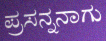
ಪ್ರಸನ್ನನಾಗು